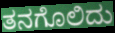
ತನಗೊಲಿದು